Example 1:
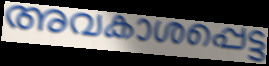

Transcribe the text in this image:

അവകാശപ്പെട്ട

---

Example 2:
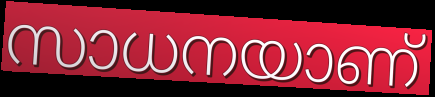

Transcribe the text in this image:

സാധനയാണ്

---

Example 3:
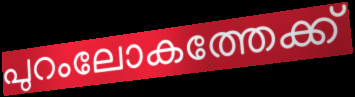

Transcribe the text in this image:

പുറംലോകത്തേക്ക്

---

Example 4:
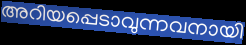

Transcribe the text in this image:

അറിയപ്പെടാവുന്നവനായി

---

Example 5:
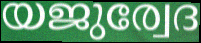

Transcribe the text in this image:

യജുര്വേദ